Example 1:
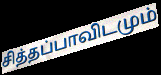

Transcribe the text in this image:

சித்தப்பாவிடமும்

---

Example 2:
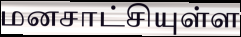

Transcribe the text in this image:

மனசாட்சியுள்ள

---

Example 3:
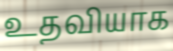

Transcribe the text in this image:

உதவியாக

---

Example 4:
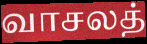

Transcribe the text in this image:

வாசலத்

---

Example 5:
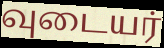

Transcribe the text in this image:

வுடையர்